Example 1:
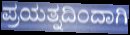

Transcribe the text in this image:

ಪ್ರಯತ್ನದಿಂದಾಗಿ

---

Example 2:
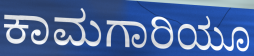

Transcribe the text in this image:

ಕಾಮಗಾರಿಯೂ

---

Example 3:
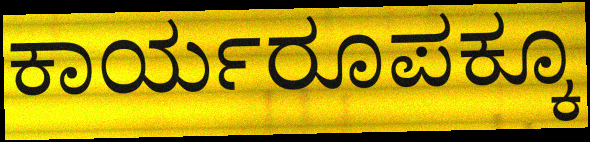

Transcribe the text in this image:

ಕಾರ್ಯರೂಪಕ್ಕೂ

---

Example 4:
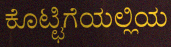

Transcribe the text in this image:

ಕೊಟ್ಟಿಗೆಯಲ್ಲಿಯ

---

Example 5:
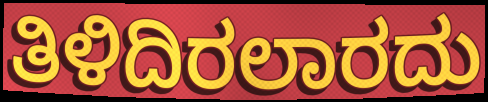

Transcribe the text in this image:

ತಿಳಿದಿರಲಾರದು